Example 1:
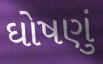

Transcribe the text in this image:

ઘોષણું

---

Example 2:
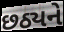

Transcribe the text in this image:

છઠ્યને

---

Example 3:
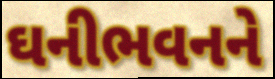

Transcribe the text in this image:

ઘનીભવનને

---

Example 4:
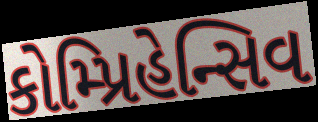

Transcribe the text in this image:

કોમ્પ્રિહેન્સિવ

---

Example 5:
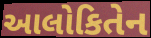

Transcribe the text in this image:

આલોકિતેન